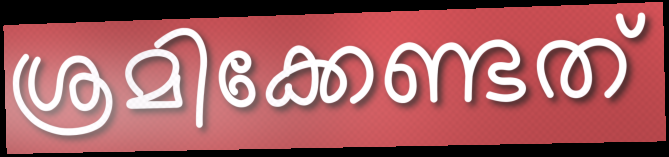
ശ്രമിക്കേണ്ടത്